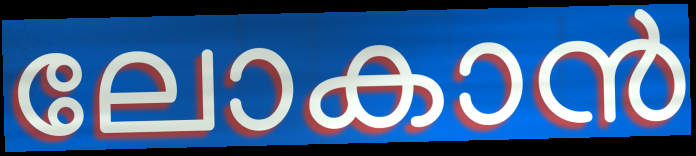
ലോകാൻ